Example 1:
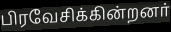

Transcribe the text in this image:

பிரவேசிக்கின்றனர்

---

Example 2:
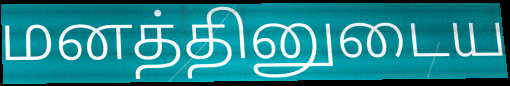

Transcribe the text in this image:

மனத்தினுடைய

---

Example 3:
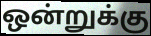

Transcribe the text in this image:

ஒன்றுக்கு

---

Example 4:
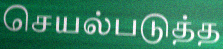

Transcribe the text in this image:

செயல்படுத்த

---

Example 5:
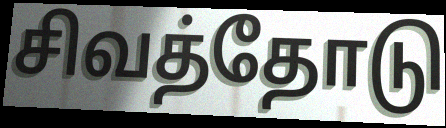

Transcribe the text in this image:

சிவத்தோடு